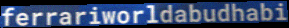
ferrariworldabudhabi